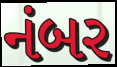
નંબર